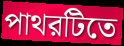
পাথরটিতে